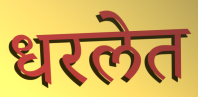
धरलेत